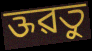
ক্তৱতু